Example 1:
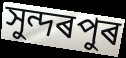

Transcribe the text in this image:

সুন্দৰপুৰ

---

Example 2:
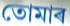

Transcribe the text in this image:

তোমাৰ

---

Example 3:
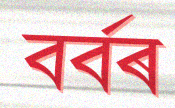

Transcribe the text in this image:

বৰ্বৰ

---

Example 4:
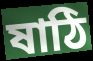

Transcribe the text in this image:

ষাঠি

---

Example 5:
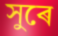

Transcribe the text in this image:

সুৰে